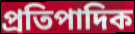
প্রতিপাদিক